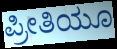
ಪ್ರೀತಿಯೂ